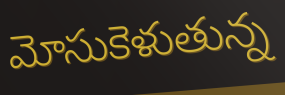
మోసుకెళుతున్న